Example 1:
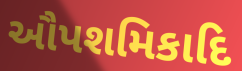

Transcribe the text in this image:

ઔપશમિકાદિ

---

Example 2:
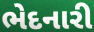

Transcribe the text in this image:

ભેદનારી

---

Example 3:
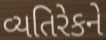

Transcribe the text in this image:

વ્યતિરેકને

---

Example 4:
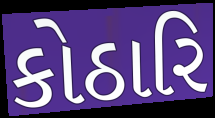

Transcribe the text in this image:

કોઠારિ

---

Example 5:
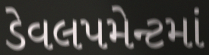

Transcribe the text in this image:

ડેવલપમેન્ટમાં